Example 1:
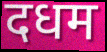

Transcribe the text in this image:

दधम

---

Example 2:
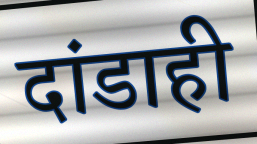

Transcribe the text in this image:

दांडाही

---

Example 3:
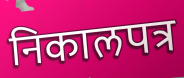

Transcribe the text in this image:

निकालपत्र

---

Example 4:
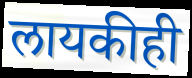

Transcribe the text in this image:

लायकीही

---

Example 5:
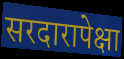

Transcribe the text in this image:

सरदारापेक्षा